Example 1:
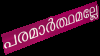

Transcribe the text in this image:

പരമാർത്ഥമല്ലേ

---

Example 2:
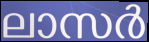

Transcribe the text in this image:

ലാസർ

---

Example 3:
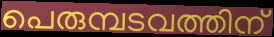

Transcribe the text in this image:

പെരുമ്പടവത്തിന്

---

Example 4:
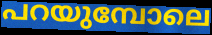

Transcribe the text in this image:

പറയുമ്പോലെ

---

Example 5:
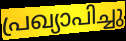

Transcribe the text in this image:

പ്രഖ്യാപിച്ചു